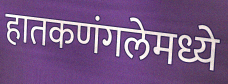
हातकणंगलेमध्ये